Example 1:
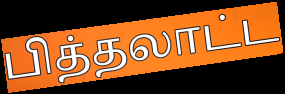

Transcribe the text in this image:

பித்தலாட்ட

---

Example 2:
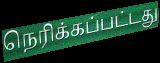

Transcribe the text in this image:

நெரிக்கப்பட்டது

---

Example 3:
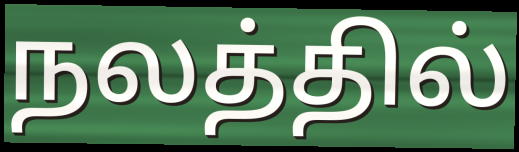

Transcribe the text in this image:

நலத்தில்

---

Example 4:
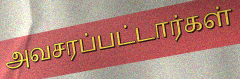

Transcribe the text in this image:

அவசரப்பட்டார்கள்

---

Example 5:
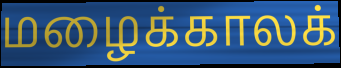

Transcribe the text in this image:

மழைக்காலக்